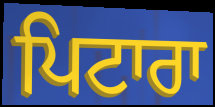
ਪਿਟਾਰਾ